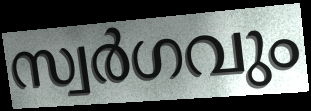
സ്വർഗവും